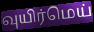
வுயிர்மெய்